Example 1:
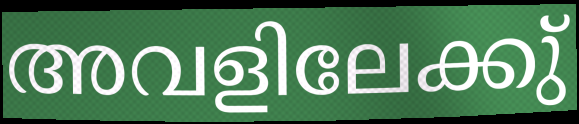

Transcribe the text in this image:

അവളിലേക്കു്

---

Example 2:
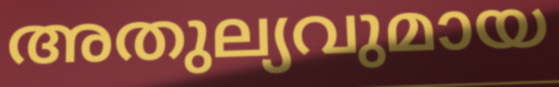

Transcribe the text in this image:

അതുല്യവുമായ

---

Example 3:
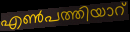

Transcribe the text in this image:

എൺപത്തിയാറ്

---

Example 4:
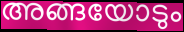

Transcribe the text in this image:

അങ്ങയോടും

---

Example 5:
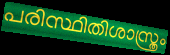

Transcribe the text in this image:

പരിസ്ഥിതിശാസ്ത്രം